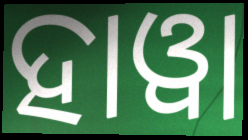
ହାୱା